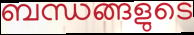
ബന്ധങ്ങളുടെ